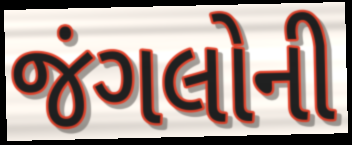
જંગલોની